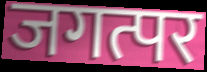
जगत्पर